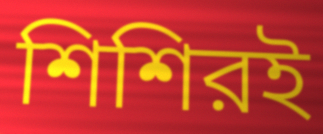
শিশিরই